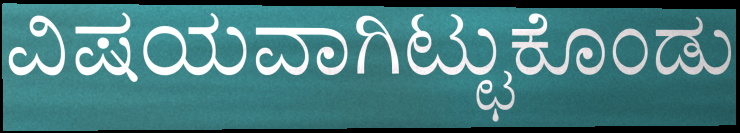
ವಿಷಯವಾಗಿಟ್ಟುಕೊಂಡು